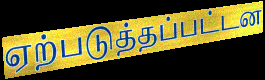
ஏற்படுத்தப்பட்டன